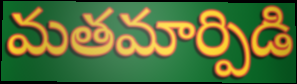
మతమార్పిడి